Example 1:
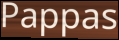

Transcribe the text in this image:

Pappas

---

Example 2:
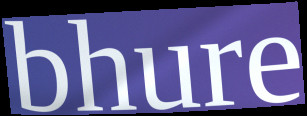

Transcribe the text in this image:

bhure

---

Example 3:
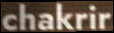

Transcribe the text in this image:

chakrir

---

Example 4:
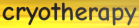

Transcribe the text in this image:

cryotherapy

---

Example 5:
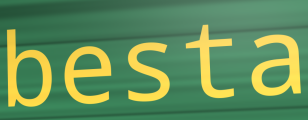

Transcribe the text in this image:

besta